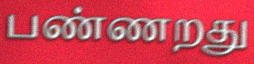
பண்ணறது